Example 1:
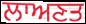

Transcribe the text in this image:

ਲਾਅਣਤ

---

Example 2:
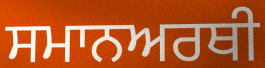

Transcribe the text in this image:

ਸਮਾਨਅਰਥੀ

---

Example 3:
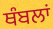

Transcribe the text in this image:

ਥੰਬਲਾਂ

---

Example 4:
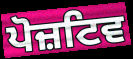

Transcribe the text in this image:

ਪੋਜ਼ਟਿਵ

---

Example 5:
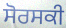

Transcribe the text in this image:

ਸੋਰਸਕੀ